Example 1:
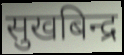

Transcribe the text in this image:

सुखबिन्द्र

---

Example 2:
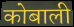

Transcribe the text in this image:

कोबाली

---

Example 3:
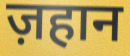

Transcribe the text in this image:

ज़हान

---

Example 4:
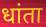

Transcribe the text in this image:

धांता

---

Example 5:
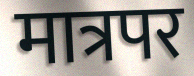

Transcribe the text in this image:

मात्रपर